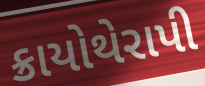
ક્રાયોથેરાપી